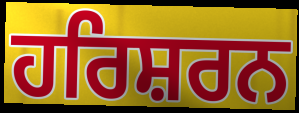
ਹਰਿਸ਼ਰਨ